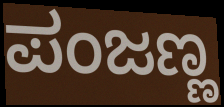
ಪಂಜಣ್ಣ